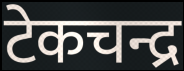
टेकचन्द्र